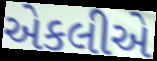
એકલીએ